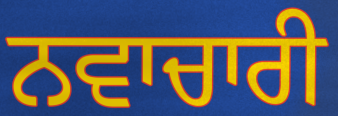
ਨਵਾਚਾਰੀ